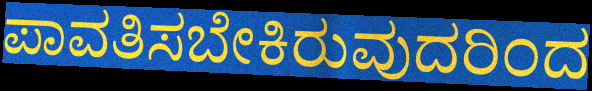
ಪಾವತಿಸಬೇಕಿರುವುದರಿಂದ